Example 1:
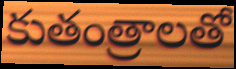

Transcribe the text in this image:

కుతంత్రాలతో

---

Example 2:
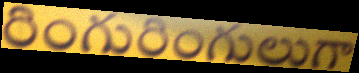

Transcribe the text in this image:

రింగురింగులుగా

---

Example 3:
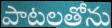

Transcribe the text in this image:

పాటలతోను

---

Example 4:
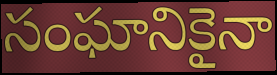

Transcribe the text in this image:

సంఘానికైనా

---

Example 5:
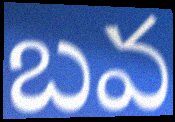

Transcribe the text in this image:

బవ